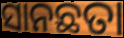
ସାନଛତା